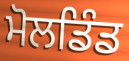
ਮੋਲਡਿੰਡ